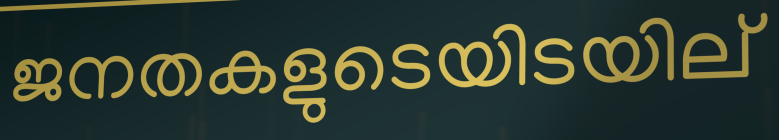
ജനതകളുടെയിടയില്